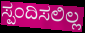
ಸ್ಪಂದಿಸಲಿಲ್ಲ